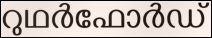
റുഥർഫോർഡ്